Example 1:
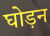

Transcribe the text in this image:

घोड़न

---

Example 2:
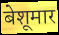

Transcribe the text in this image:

बेशूमार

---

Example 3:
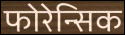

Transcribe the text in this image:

फोरेन्सिक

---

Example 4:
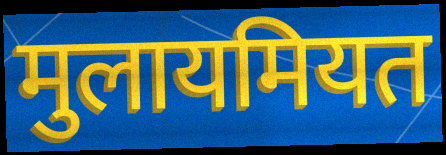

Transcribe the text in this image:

मुलायमियत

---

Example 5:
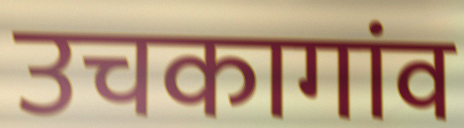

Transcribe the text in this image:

उचकागांव